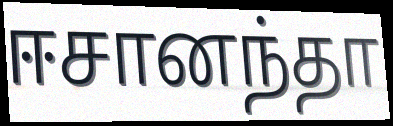
ஈசானந்தா